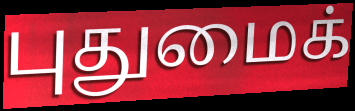
புதுமைக்